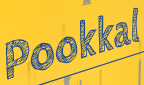
Pookkal